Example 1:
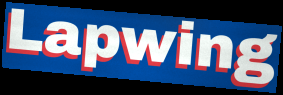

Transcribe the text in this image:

Lapwing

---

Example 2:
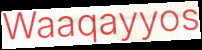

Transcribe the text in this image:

Waaqayyos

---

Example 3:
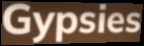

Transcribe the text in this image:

Gypsies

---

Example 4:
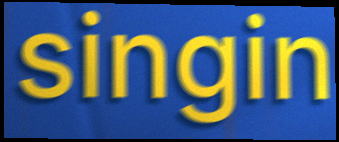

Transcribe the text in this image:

singin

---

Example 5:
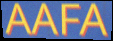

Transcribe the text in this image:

AAFA